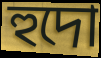
হুদো